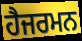
ਹੈਜਰਮਨ